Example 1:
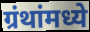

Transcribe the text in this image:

ग्रंथांमध्ये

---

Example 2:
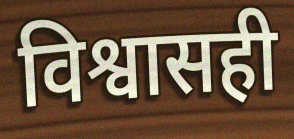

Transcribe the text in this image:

विश्वासही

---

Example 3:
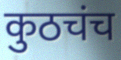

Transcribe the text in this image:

कुठचंच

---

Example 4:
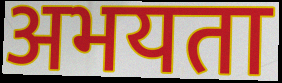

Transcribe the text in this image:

अभयता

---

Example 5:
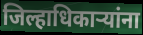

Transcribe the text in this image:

जिल्हाधिकाऱ्यांना